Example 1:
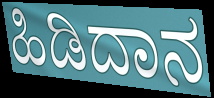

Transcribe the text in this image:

ಹಿಡಿದಾನ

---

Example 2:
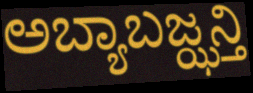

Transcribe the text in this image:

ಅಬ್ಯಾಬಜ್ಝನ್ತಿ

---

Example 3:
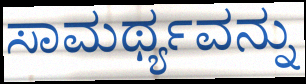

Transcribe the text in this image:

ಸಾಮರ್ಥ್ಯವನ್ನು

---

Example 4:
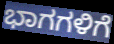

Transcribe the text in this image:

ಭಾಗಗಳಿಗೆ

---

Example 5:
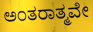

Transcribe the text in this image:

ಅಂತರಾತ್ಮವೇ